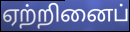
ஏற்றினைப்